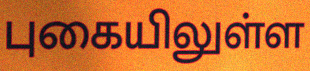
புகையிலுள்ள